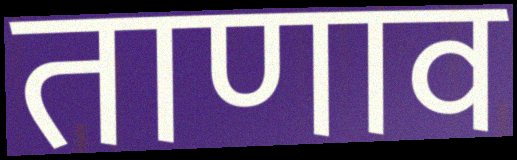
ताणाव